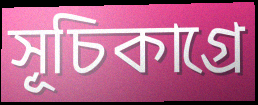
সূচিকাগ্রে